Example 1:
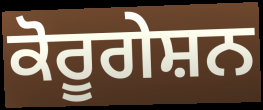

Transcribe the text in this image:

ਕੋਰੂਗੇਸ਼ਨ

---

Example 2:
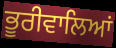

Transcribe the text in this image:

ਭੂਰੀਵਾਲਿਆਂ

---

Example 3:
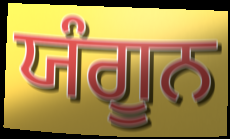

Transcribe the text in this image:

ਯੰਗੂਨ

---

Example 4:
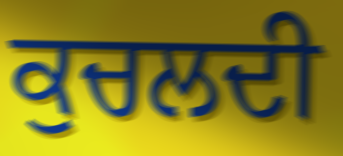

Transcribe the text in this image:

ਕੁਚਲਦੀ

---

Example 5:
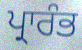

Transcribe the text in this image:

ਪ੍ਰਾਰੰਭ